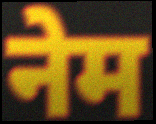
नेम